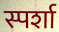
स्पर्शा